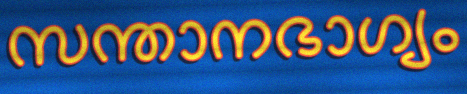
സന്താനഭാഗ്യം